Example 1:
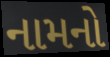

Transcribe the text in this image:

નામનો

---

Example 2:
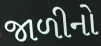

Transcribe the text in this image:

જાળીનો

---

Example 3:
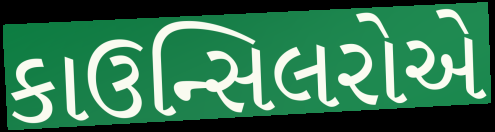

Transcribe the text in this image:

કાઉન્સિલરોએ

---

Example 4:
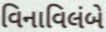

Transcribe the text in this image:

વિનાવિલંબે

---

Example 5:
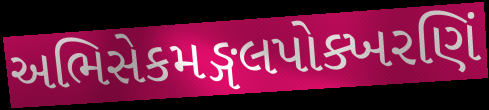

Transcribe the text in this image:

અભિસેકમઙ્ગલપોક્ખરણિં